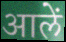
आलें